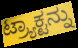
ಟ್ರ್ಯಾಕ್ಟನ್ನು